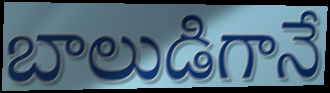
బాలుడిగానే